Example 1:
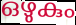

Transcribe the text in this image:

ഒഴുകും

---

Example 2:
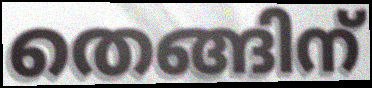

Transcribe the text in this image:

തെങ്ങിന്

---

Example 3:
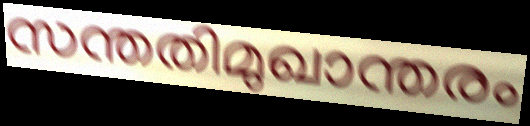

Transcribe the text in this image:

സന്തതിമുഖാന്തരം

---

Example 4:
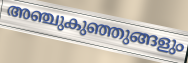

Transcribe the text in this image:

അഞ്ചുകുഞ്ഞുങ്ങളും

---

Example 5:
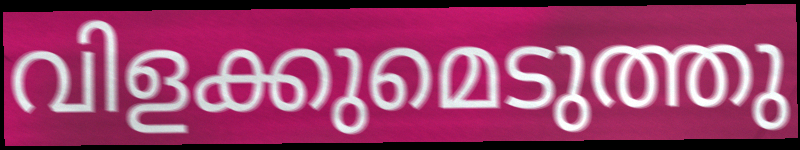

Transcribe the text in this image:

വിളക്കുമെടുത്തു